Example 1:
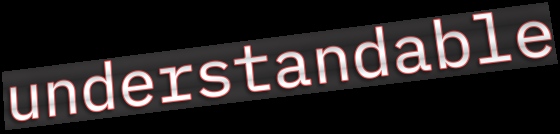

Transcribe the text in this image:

understandable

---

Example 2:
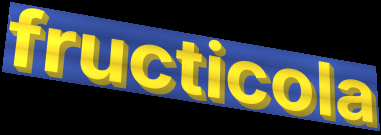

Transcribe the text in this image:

fructicola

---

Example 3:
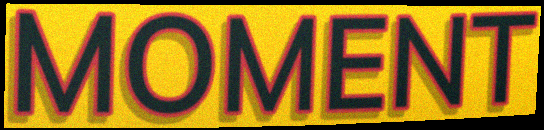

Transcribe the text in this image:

MOMENT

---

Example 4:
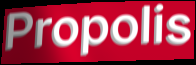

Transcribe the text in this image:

Propolis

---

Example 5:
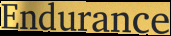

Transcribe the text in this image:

Endurance